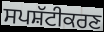
ਸਪਸ਼ੱਟੀਕਰਣ